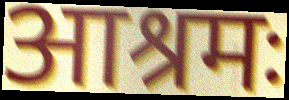
आश्रमः